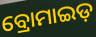
ବ୍ରୋମାଇଡ଼